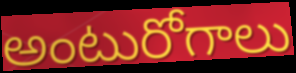
అంటురోగాలు